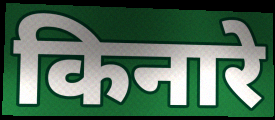
किनारे